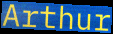
Arthur